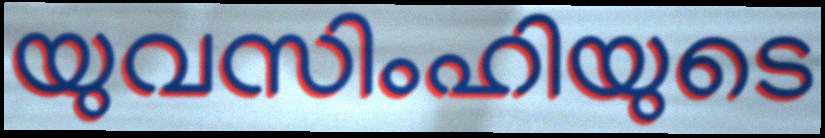
യുവസിംഹിയുടെ